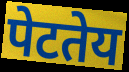
पेटतेय